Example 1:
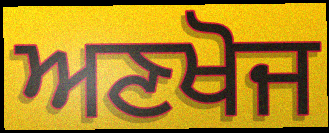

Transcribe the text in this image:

ਅਣਖੋਜ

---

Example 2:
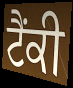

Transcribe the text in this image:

ਟੈਂਕੀ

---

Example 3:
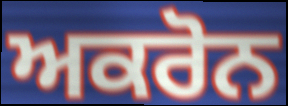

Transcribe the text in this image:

ਅਕਰੋਨ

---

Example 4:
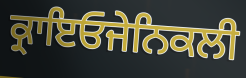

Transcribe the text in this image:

ਕ੍ਰਾਇਓਜੇਨਿਕਲੀ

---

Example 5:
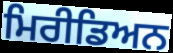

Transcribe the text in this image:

ਮਿਰੀਡਿਅਨ